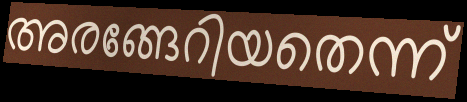
അരങ്ങേറിയതെന്ന്